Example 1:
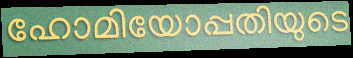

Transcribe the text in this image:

ഹോമിയോപ്പതിയുടെ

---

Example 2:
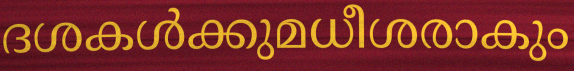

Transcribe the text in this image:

ദശകൾക്കുമധീശരാകും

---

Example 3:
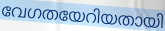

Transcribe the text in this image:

വേഗതയേറിയതായി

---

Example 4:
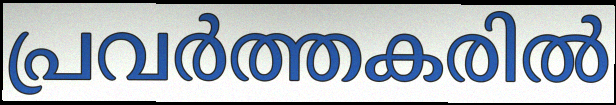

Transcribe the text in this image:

പ്രവർത്തകരിൽ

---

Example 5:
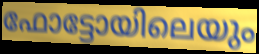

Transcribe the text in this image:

ഫോട്ടോയിലെയും